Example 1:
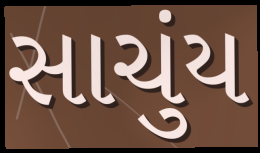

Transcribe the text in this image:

સાચુંય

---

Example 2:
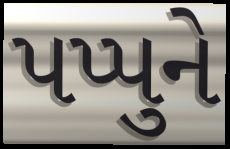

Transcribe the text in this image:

પપ્પુને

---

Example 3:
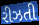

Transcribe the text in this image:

રીઝતી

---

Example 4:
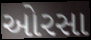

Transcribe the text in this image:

ઓરસા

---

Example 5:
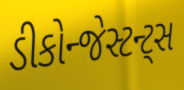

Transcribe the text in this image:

ડીકોન્જેસ્ટન્ટ્સ